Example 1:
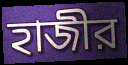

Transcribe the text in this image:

হাজীর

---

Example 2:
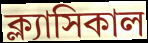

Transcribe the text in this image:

ক্ল্যাসিকাল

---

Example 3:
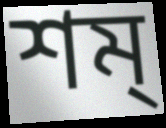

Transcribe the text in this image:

শম্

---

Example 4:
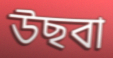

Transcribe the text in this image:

উছবা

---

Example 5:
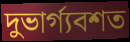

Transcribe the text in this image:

দুভার্গ্যবশত